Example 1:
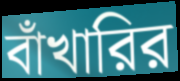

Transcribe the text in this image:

বাঁখারির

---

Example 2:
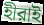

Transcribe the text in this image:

হীরাই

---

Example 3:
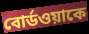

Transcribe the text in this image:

বোর্ডওয়াকে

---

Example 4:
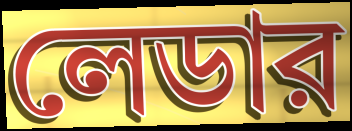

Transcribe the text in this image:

লেডার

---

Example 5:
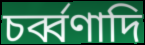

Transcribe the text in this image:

চর্ব্বণাদি